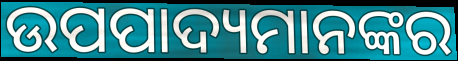
ଉପପାଦ୍ୟମାନଙ୍କର